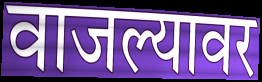
वाजल्यावर